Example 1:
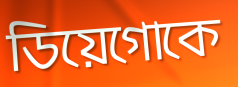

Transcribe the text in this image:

ডিয়েগোকে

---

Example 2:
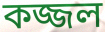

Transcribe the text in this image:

কজ্জল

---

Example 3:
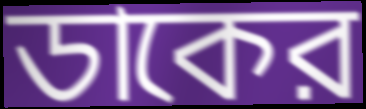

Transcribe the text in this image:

ডাকের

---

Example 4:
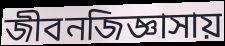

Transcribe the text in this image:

জীবনজিজ্ঞাসায়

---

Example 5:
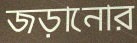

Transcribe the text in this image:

জড়ানোর